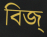
বিজ্